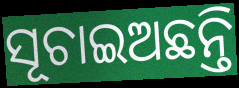
ସୂଚାଇଅଛନ୍ତି